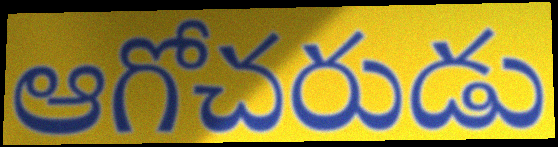
ఆగోచరుడు